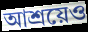
আশ্রয়েও